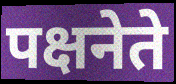
पक्षनेते